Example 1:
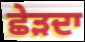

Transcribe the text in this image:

ਛੇੜਦਾ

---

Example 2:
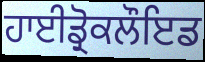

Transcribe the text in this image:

ਹਾਈਡ੍ਰੋਕਲੌਇਡ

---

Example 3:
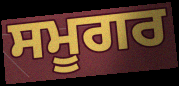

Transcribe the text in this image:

ਸਮੂਗਰ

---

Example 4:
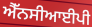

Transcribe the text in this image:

ਐੱਨਸੀਆਈਪੀ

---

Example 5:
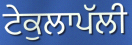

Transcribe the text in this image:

ਟੇਕੁਲਾਪੱਲੀ